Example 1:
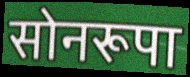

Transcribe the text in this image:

सोनरूपा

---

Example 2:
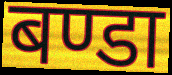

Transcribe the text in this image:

बण्डा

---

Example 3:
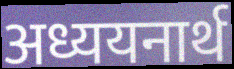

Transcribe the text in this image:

अध्ययनार्थ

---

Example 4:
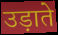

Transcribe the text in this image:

उड़ाते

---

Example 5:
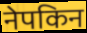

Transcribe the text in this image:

नेपकिन